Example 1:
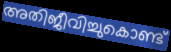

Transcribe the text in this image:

അതിജീവിച്ചുകൊണ്ട്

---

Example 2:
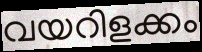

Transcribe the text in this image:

വയറിളക്കം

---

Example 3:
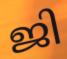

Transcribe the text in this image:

ജി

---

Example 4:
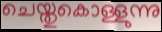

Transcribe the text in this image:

ചെയ്തുകൊള്ളുന്നു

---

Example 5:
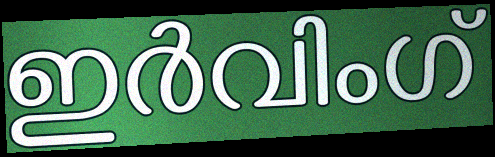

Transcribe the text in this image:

ഇർവിംഗ്